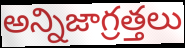
అన్నిజాగ్రత్తలు